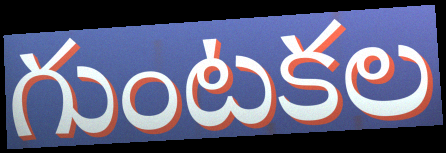
గుంటకల